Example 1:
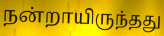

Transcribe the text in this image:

நன்றாயிருந்தது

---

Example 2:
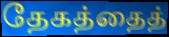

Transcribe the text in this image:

தேகத்தைத்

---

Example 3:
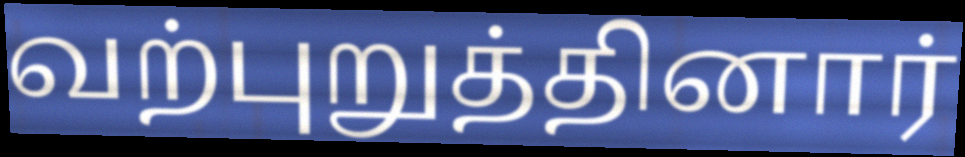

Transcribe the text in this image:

வற்புறுத்தினார்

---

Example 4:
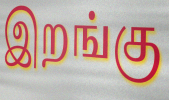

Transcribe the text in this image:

இறங்கு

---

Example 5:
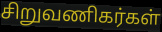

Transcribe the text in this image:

சிறுவணிகர்கள்